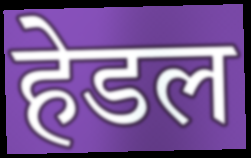
हेडल